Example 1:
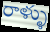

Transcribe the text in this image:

రాళ్ళు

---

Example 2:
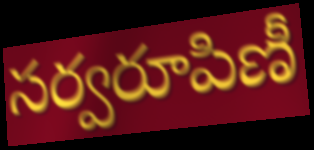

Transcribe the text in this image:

సర్వరూపిణీ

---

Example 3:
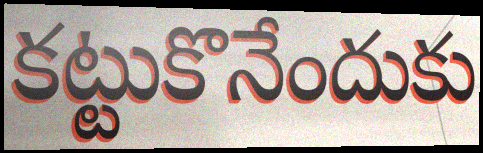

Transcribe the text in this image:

కట్టుకొనేందుకు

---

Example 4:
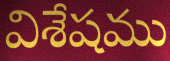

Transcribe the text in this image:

విశేషము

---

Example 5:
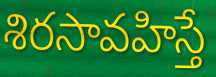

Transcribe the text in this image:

శిరసావహిస్తే